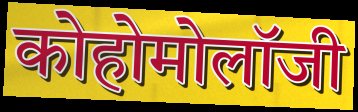
कोहोमोलॉजी